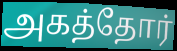
அகத்தோர்